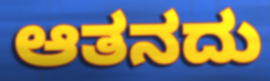
ಆತನದು